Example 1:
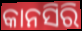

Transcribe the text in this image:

କାନସିରି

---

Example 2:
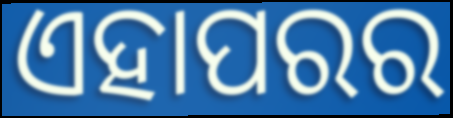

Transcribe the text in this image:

ଏହାପରର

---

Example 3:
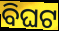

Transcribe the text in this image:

ବିଘଟ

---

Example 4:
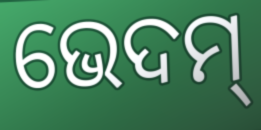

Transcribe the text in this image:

ଭେଦମ୍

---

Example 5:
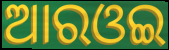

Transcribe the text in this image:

ଆରଓଇ